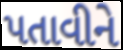
પતાવીને